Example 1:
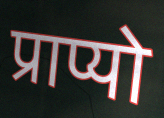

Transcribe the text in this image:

प्राप्यो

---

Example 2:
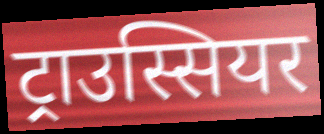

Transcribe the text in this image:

ट्राउस्सियर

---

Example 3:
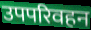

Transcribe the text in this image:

उपपरिवहन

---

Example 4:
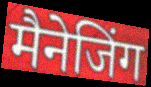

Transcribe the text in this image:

मैनेजिंग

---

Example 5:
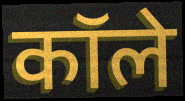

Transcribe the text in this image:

कॉले